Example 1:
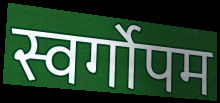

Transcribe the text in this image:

स्वर्गोपम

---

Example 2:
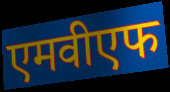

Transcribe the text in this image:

एमवीएफ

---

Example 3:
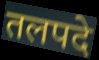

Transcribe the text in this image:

तलपदे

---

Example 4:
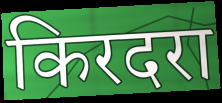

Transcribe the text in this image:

किरदरा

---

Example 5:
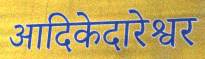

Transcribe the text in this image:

आदिकेदारेश्वर